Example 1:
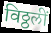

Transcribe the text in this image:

विठ्ठलीं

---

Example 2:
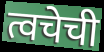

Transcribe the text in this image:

त्वचेची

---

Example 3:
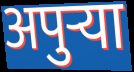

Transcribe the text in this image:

अपुर्‍या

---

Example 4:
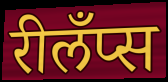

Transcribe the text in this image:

रीलँप्स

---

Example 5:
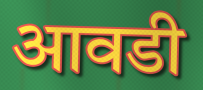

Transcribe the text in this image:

आवडी